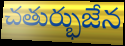
చతుర్భుజేన